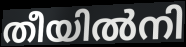
തീയിൽനി